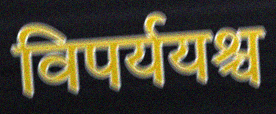
विपर्ययश्च